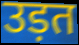
उड़त